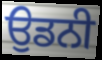
ਉਡਨੀ